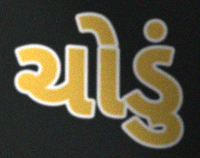
ચોડું